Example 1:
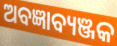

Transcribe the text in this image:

ଅବଜ୍ଞାବ୍ୟଞ୍ଜକ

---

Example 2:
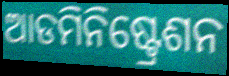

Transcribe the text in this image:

ଆଡମିନିଷ୍ଟ୍ରେଶନ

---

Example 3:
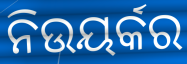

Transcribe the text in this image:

ନିଉୟର୍କର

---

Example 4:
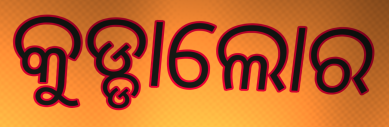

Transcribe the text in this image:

କୁଡ୍ଡାଲୋର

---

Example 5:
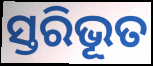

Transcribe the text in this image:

ସ୍ତରିଭୂତ